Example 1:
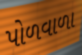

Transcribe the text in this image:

પોળવાળા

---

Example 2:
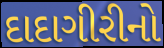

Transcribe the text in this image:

દાદાગીરીનો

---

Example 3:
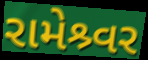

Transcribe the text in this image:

રામેશ્ર્વર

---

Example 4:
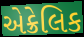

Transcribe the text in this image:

એક્રેલિક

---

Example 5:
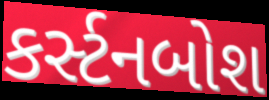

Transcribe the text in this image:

કર્સ્ટનબોશ